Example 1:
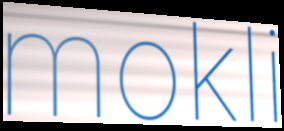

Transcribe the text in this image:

mokli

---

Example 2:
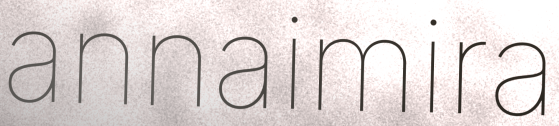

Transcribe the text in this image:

annaimira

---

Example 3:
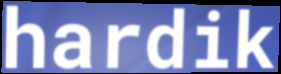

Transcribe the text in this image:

hardik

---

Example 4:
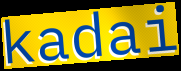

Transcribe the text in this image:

kadai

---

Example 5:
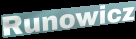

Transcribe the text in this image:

Runowicz